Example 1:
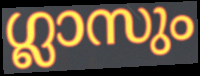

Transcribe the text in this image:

ഗ്ലാസും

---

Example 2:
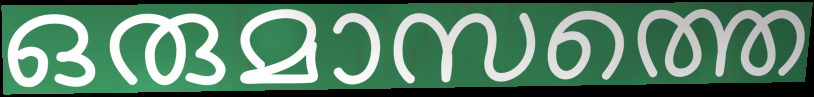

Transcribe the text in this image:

ഒരുമാസത്തെ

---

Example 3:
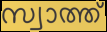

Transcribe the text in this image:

സ്വാത്ത്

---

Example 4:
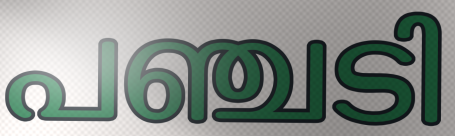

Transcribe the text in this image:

പഞ്ചടി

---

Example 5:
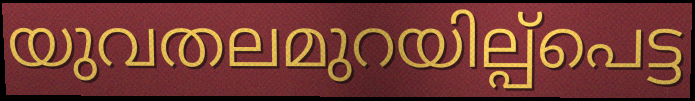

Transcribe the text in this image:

യുവതലമുറയില്പ്പെട്ട